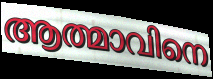
ആത്മാവിനെ